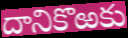
దానికొఱకు